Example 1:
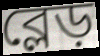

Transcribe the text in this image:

ব্লেড়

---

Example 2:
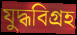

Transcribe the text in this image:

যুদ্ধবিগ্রহ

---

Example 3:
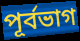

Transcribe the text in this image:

পূর্বভাগ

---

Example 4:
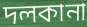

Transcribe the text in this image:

দলকানা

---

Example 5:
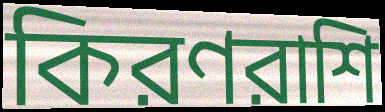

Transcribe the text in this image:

কিরণরাশি